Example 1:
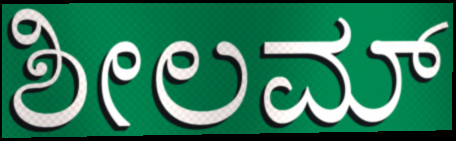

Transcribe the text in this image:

ಶೀಲಮ್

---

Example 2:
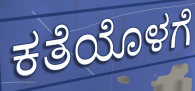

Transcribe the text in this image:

ಕತೆಯೊಳಗೆ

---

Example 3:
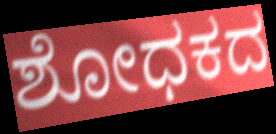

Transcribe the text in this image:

ಶೋಧಕದ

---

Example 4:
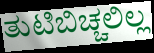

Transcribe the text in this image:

ತುಟಿಬಿಚ್ಚಲಿಲ್ಲ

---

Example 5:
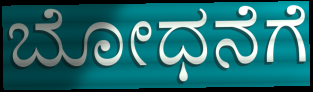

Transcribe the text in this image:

ಬೋಧನೆಗೆ